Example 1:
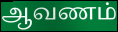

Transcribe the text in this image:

ஆவணம்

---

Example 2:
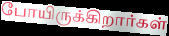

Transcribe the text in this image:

போயிருக்கிறார்கள்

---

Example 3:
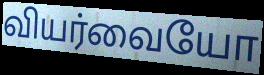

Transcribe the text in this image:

வியர்வையோ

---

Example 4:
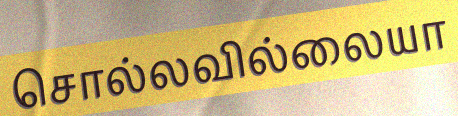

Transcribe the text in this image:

சொல்லவில்லையா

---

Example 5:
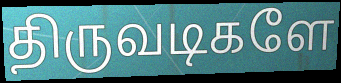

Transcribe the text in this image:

திருவடிகளே